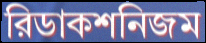
রিডাকশনিজম